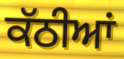
ਕੱਠੀਆਂ